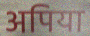
अपिया